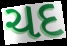
ચદ